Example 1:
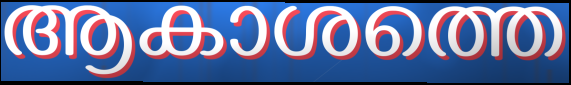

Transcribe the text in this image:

ആകാശത്തെ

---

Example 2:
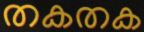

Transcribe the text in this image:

തകതക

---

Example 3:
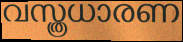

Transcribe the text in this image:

വസ്ത്രധാരണ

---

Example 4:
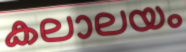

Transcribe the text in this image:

കലാലയം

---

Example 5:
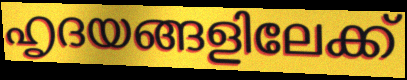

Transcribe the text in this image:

ഹൃദയങ്ങളിലേക്ക്